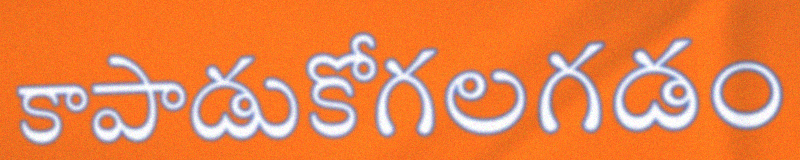
కాపాడుకోగలగడం